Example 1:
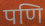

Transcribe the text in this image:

पणि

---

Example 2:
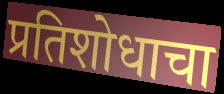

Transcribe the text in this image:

प्रतिशोधाचा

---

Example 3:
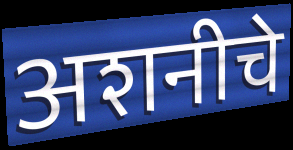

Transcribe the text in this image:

अशनीचे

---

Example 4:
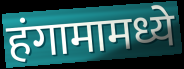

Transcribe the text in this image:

हंगामामध्ये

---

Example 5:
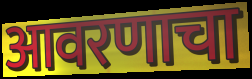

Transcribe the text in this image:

आवरणाचा